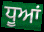
ਧੂਆਂ